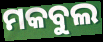
ମକବୁଲ